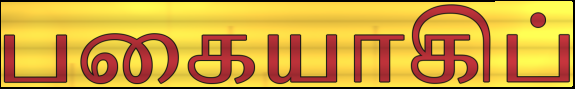
பகையாகிப்